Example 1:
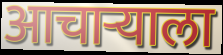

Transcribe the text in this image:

आचाऱ्याला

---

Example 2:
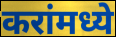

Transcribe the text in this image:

करांमध्ये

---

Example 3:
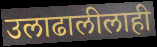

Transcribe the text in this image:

उलाढालीलाही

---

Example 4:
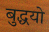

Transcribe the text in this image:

बुद्धयो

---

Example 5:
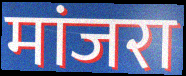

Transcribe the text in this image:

मांजरा